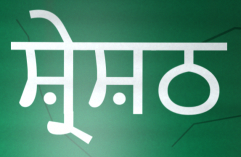
ਸ਼੍ਰੇਸ਼ਠ